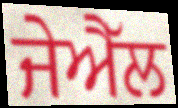
ਜੇਐੱਲ